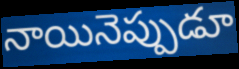
నాయినెప్పుడూ